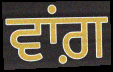
ਵਾਂਗ਼